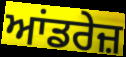
ਆਂਡਰੇਜ਼